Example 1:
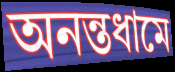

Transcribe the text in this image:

অনন্তধামে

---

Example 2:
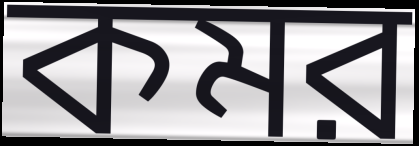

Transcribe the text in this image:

কমর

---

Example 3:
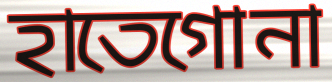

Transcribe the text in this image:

হাতেগোনা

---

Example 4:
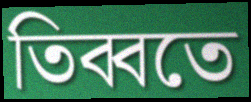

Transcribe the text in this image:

তিব্বতে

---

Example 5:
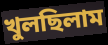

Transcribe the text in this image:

খুলছিলাম